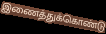
இணைத்துக்கொண்டு